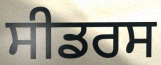
ਸੀਡਰਸ